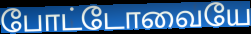
போட்டோவையே